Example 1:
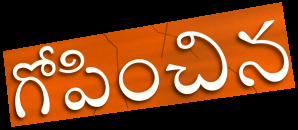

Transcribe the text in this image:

గోపించిన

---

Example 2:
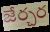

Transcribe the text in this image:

జేర్చర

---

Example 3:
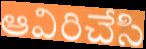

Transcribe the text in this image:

ఆవిరిచేసి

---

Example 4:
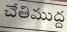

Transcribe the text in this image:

చేతిముద్ద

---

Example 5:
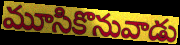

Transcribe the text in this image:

మూసికొనువాడు